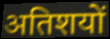
अतिशयों